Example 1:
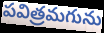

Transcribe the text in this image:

పవిత్రమగును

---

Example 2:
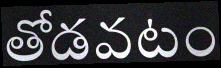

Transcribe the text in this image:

తోడవటం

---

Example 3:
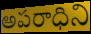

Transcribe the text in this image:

అపరాధిని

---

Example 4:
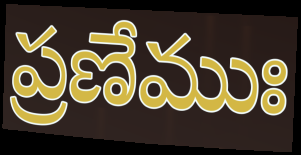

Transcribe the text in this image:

ప్రణేముః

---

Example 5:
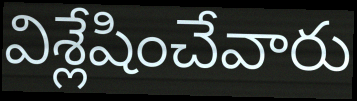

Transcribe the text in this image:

విశ్లేషించేవారు